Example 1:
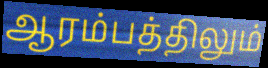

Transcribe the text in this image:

ஆரம்பத்திலும்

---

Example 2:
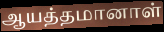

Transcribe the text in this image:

ஆயத்தமானாள்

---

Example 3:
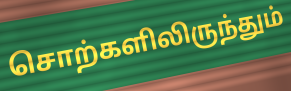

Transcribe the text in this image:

சொற்களிலிருந்தும்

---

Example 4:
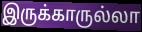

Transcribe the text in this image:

இருக்காருல்லா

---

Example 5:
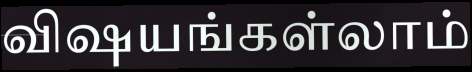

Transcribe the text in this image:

விஷயங்கள்லாம்